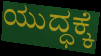
ಯುದ್ಧಕ್ಕೆ